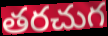
తరచుగ